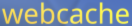
webcache